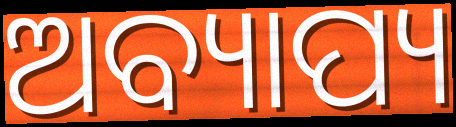
ଅବ୍ୟାପ୍ୟ